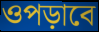
ওপড়াবে